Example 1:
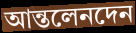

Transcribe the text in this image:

আন্তলেনদেন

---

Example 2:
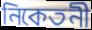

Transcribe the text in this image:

নিকেতনী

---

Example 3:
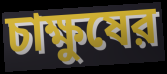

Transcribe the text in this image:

চাক্ষুষের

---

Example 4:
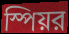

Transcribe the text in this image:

স্পিয়র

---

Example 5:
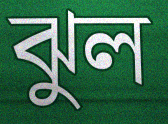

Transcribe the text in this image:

ঝুল